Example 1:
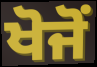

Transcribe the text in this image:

ਖੋਜੋਂ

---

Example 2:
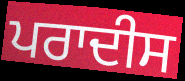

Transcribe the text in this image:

ਪਰਾਦੀਸ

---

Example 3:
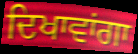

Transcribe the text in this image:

ਦਿਖਾਵਾਂਗਾ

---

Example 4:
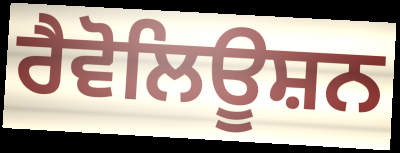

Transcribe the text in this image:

ਰੈਵੋਲਿਊਸ਼ਨ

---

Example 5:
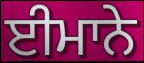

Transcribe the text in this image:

ਈਮਾਨੇ